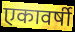
एकावर्षी